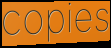
copies